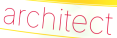
architect